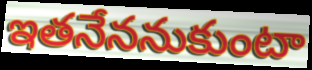
ఇతనేననుకుంటా